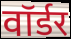
वॉर्डर